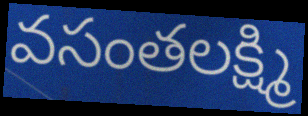
వసంతలక్ష్మి